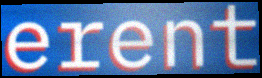
erent